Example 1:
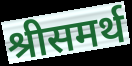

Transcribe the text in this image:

श्रीसमर्थ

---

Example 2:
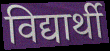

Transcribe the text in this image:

विद्यार्थी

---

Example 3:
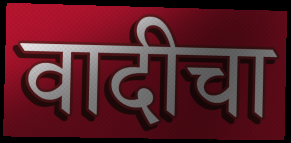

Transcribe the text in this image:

वादीचा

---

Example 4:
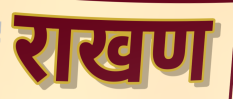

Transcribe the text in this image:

राखण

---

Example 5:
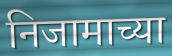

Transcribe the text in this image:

निजामाच्या